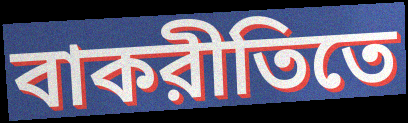
বাকরীতিতে